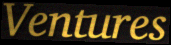
Ventures